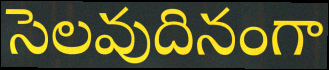
సెలవుదినంగా